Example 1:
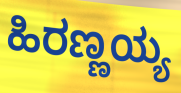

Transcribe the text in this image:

ಹಿರಣ್ಣಯ್ಯ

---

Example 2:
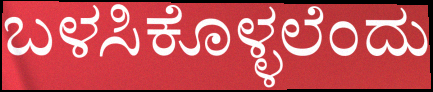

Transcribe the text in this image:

ಬಳಸಿಕೊಳ್ಳಲೆಂದು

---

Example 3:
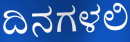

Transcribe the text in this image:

ದಿನಗಳಲಿ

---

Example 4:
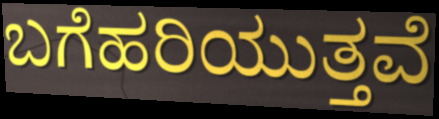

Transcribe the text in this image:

ಬಗೆಹರಿಯುತ್ತವೆ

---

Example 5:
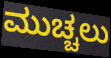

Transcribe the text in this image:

ಮುಚ್ಚಲು